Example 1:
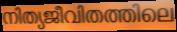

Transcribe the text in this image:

നിത്യജീവിതത്തിലെ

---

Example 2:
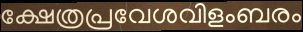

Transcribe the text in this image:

ക്ഷേത്രപ്രവേശവിളംബരം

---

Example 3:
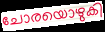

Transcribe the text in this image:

ചോരയൊഴുകി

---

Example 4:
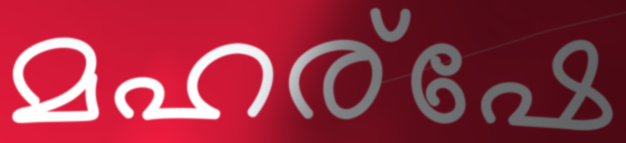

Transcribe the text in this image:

മഹര്ഷേ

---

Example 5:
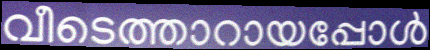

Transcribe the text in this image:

വീടെത്താറായപ്പോൾ